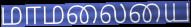
மாமலையை